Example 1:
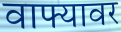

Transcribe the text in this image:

वाफ्यावर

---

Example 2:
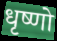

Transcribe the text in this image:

धृष्णो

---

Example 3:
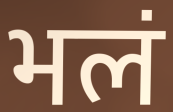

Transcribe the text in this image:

भलं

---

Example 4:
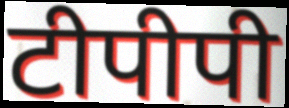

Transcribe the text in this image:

टीपीपी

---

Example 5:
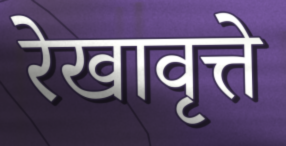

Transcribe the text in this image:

रेखावृत्ते